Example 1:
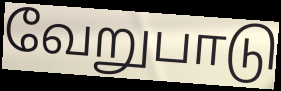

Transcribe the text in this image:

வேறுபாடு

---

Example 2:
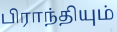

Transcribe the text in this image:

பிராந்தியும்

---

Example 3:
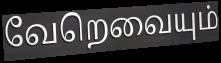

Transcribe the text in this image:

வேறெவையும்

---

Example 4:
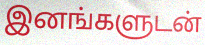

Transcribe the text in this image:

இனங்களுடன்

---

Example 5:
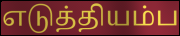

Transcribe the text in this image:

எடுத்தியம்ப